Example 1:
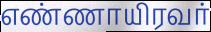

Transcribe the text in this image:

எண்ணாயிரவர்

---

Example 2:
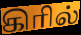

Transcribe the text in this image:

கிரில்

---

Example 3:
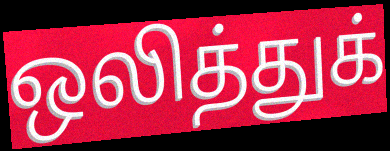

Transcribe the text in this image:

ஒலித்துக்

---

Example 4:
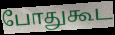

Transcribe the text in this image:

போதுகூட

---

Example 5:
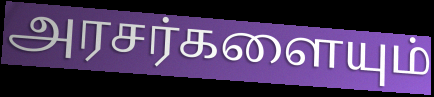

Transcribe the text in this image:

அரசர்களையும்